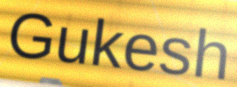
Gukesh